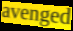
avenged